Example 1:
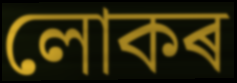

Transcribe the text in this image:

লোকৰ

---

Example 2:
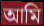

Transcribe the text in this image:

আমি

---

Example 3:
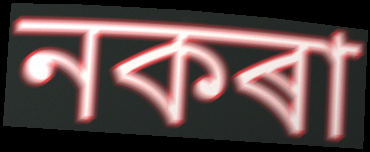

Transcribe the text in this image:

নকৰা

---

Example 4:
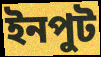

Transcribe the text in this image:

ইনপুট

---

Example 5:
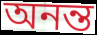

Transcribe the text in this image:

অনন্ত